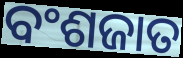
ବଂଶଜାତ